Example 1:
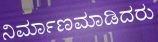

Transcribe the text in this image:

ನಿರ್ಮಾಣಮಾಡಿದರು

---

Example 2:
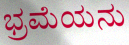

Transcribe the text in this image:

ಭ್ರಮೆಯನು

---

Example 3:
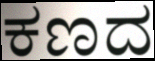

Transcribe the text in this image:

ಕಣದ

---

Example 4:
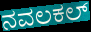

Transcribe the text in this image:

ನವಲಕಲ್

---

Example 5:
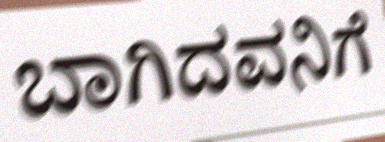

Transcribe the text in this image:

ಬಾಗಿದವನಿಗೆ